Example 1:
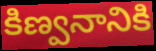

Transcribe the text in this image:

కిణ్వనానికి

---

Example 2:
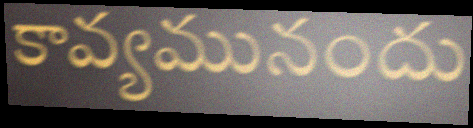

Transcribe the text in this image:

కావ్యమునందు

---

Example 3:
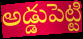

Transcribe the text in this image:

అడ్డుపెట్టి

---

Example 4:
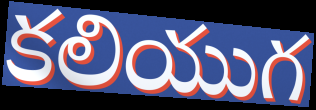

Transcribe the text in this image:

కలియుగ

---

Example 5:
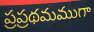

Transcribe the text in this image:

ప్రప్రథమముగా